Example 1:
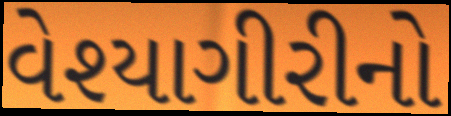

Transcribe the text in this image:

વેશ્યાગીરીનો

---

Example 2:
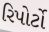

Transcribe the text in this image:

રિપોર્ટો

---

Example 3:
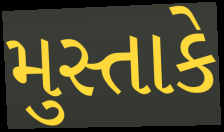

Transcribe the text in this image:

મુસ્તાકે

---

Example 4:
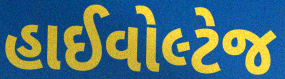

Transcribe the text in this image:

હાઈવોલ્ટેજ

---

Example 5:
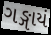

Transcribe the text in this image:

ગઙ્ગાયં